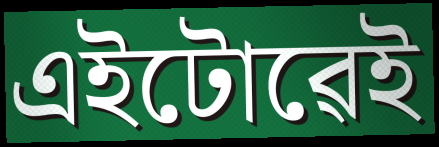
এইটোৱেই